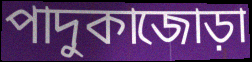
পাদুকাজোড়া